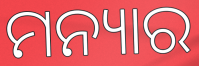
ମନ୍ୟାର